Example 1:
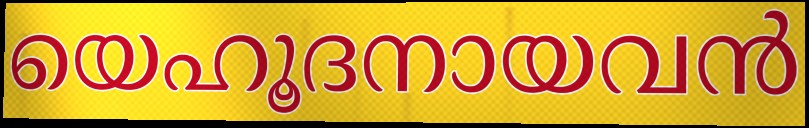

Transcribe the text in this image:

യെഹൂദനായവൻ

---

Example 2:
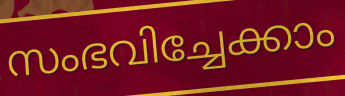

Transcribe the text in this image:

സംഭവിച്ചേക്കാം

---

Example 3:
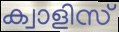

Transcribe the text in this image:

ക്വാളിസ്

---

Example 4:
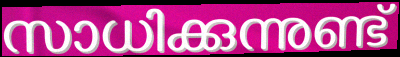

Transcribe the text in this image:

സാധിക്കുന്നുണ്ട്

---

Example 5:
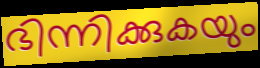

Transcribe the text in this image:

ഭിന്നിക്കുകയും